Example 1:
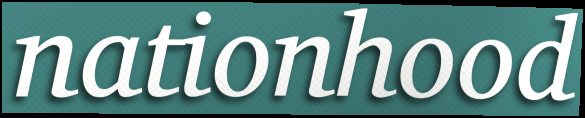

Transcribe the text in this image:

nationhood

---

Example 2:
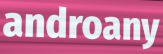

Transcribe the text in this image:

androany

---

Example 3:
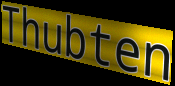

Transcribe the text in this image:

Thubten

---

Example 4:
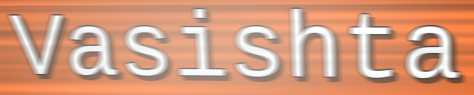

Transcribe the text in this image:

Vasishta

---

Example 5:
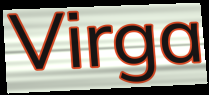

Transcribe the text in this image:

Virga